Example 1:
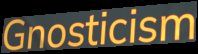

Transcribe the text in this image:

Gnosticism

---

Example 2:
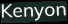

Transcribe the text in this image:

Kenyon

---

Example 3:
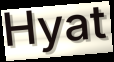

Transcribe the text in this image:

Hyat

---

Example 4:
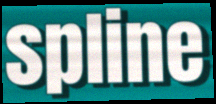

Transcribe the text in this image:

spline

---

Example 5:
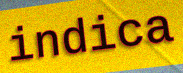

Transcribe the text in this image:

indica